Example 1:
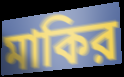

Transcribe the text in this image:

মাকির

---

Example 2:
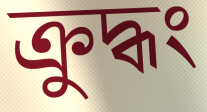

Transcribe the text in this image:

ক্রুদ্ধং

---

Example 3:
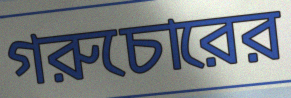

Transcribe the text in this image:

গরুচোরের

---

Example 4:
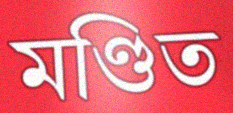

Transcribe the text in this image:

মণ্ডিত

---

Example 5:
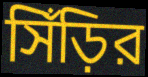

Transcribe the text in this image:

সিঁড়ির